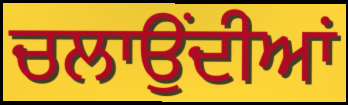
ਚਲਾਉਂਦੀਆਂ